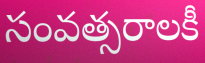
సంవత్సరాలకీ